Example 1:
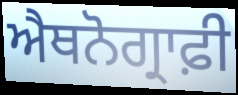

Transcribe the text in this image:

ਐਥਨੋਗ੍ਰਾਫ਼ੀ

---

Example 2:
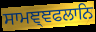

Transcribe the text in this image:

ਸਾਮਞ੍ਞਫਲਾਨਿ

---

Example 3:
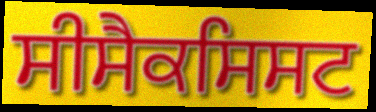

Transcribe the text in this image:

ਸੀਸੈਕਸਿਸਟ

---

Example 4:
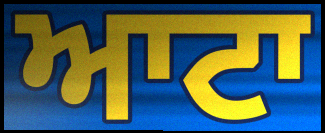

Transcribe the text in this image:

ਆਟਾ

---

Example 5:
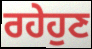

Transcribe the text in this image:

ਰਹੇਹੁਣ